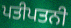
ਪਤੀਪਤਨੀ